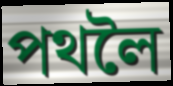
পথলৈ